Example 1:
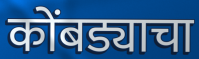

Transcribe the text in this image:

कोंबड्याचा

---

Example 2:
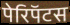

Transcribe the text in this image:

पेरिपॅटस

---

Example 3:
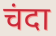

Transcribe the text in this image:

चंदा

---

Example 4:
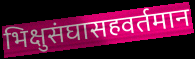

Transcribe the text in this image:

भिक्षुसंघासहवर्तमान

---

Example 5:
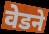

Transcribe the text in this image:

वेडने